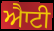
ਐਾਟੀ